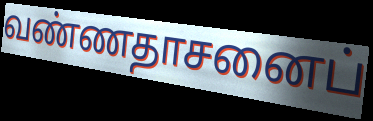
வண்ணதாசனைப்